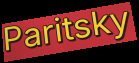
Paritsky